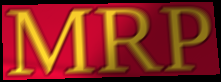
MRP